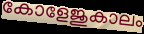
കോളേജുകാലം